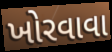
ખોરવાવા